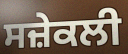
ਸਜ਼ੇਕਲੀ